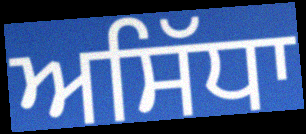
ਅਸਿੱਧਾ